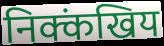
निक्कंखिय